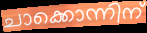
ചാക്കൊന്നിന്